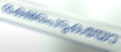
രക്ഷപെടുകയോ